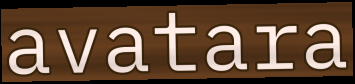
avatara